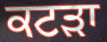
ਕਟੜਾ